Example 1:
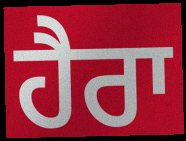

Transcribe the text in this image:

ਹੈਰਾ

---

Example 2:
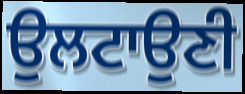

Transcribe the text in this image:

ਉਲਟਾਉਣੀ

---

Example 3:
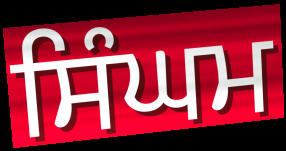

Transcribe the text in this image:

ਸਿੰਘਮ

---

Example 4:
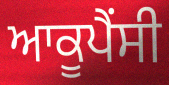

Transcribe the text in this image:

ਆਕੂਪੈਂਸੀ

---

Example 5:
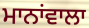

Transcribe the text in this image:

ਮਾਨਾਂਵਾਲਾ